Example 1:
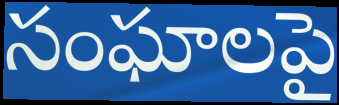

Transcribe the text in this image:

సంఘాలపై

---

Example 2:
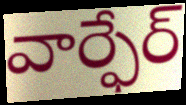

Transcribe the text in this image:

వార్ఫేర్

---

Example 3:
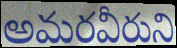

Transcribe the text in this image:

అమరవీరుని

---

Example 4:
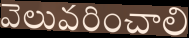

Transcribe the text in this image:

వెలువరించాలి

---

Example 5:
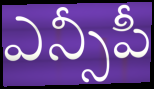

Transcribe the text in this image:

ఎన్సీపీ